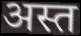
अस्त